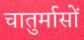
चातुर्मासों